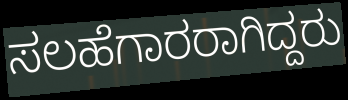
ಸಲಹೆಗಾರರಾಗಿದ್ದರು